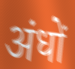
अंधों